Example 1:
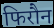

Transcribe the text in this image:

फिरौन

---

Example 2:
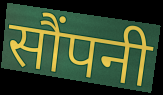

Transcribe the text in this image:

सौंपनी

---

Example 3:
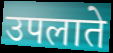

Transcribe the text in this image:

उपलाते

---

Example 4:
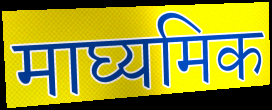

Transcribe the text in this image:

माघ्यमिक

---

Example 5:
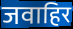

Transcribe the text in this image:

जवाहिर